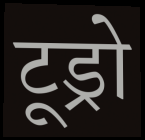
टूड्रो